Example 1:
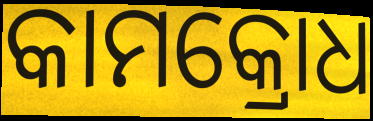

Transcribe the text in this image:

କାମକ୍ରୋଧ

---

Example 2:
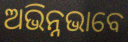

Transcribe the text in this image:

ଅଭିନ୍ନଭାବେ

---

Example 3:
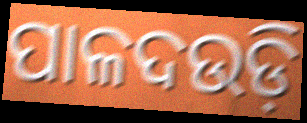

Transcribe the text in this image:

ପାଳଦଉଡ଼ି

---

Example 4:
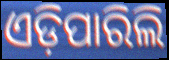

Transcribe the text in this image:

ଏଡ଼ିପାରିଲି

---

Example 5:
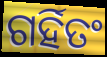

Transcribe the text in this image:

ଗର୍ହିତଂ